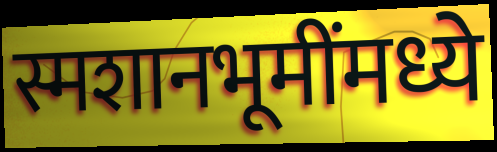
स्मशानभूमींमध्ये